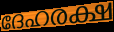
ദേഹരക്ഷ